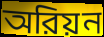
অরিয়ন